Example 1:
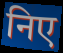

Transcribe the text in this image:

निए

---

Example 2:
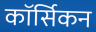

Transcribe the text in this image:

कॉर्सिकन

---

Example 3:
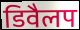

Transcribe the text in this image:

डिवैलप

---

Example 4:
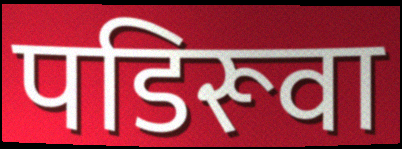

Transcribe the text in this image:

पडिरूवा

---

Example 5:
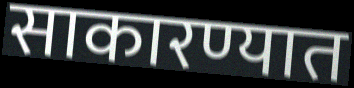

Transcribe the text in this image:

साकारण्यात